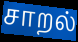
சாறல்